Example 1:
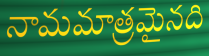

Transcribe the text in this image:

నామమాత్రమైనది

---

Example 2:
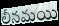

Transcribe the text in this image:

లీనమయి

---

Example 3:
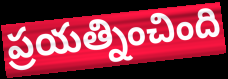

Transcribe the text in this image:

ప్రయత్నించింది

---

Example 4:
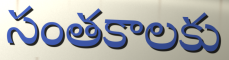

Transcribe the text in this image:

సంతకాలకు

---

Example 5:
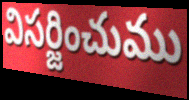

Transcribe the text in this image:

విసర్జించుము